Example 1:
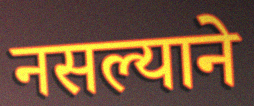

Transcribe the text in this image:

नसल्याने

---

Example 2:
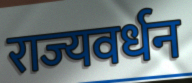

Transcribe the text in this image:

राज्‍यवर्धन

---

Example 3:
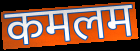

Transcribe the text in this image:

कमलम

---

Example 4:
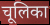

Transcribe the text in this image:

चूलिका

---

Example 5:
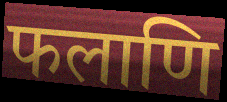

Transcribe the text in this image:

फलाणि